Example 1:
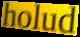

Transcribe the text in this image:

holud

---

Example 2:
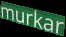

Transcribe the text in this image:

murkar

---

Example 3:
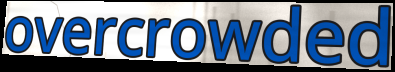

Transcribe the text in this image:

overcrowded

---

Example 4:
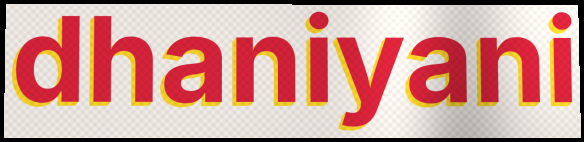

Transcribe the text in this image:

dhaniyani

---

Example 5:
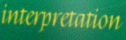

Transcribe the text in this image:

interpretation